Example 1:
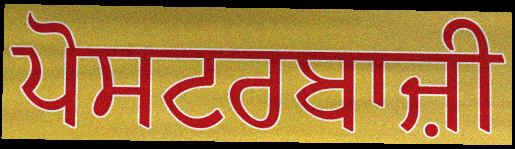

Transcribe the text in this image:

ਪੋਸਟਰਬਾਜ਼ੀ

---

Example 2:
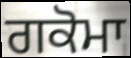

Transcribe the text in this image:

ਗਕੋਮਾ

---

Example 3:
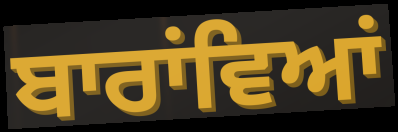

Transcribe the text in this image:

ਬਾਰਾਂਵਿਆਂ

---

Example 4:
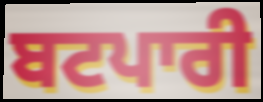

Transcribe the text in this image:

ਬਟਪਾਰੀ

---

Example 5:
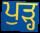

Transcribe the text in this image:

ਪੁੜ੍ਹ